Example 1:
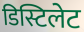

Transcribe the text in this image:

डिस्टिलेट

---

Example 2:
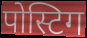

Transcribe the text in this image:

पोस्टिग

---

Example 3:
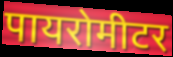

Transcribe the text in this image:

पायरोमीटर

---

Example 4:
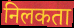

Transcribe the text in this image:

निलकता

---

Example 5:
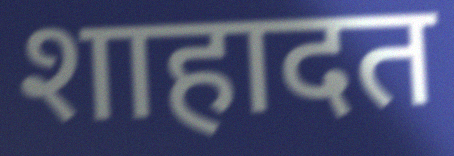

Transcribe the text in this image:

शाहादत